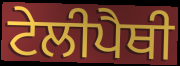
ਟੇਲੀਪੈਥੀ